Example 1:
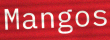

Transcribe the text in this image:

Mangos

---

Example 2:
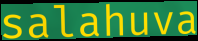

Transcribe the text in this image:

salahuva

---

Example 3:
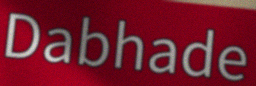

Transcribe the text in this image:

Dabhade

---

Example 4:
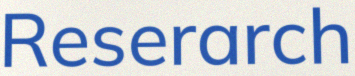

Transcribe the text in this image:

Reserarch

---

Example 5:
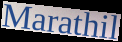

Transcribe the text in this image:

Marathil